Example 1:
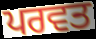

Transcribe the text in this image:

ਪਰਵਤ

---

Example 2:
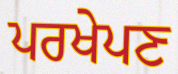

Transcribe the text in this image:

ਪਰਖੇਪਣ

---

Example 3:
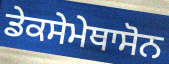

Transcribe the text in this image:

ਡੇਕਸੇਮੇਥਾਸੋਨ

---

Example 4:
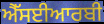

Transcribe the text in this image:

ਐੱਸਈਆਰਬੀ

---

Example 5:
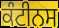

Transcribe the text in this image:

ਕੰਟੀਨਸ